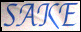
SAKE